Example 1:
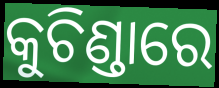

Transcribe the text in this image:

କୁଚିଣ୍ଡାରେ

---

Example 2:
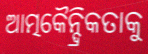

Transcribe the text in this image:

ଆତ୍ମକୈନ୍ଦ୍ରିକତାକୁ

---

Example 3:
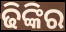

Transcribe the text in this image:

ଢିଙ୍କିର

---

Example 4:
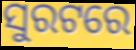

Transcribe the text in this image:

ସୁରଟରେ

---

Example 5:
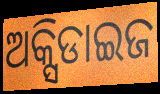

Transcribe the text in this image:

ଅକ୍ସିଡାଇଜ